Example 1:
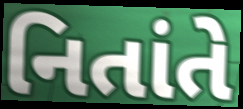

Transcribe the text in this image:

નિતાંતે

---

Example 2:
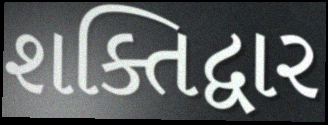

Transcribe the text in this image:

શક્તિદ્વાર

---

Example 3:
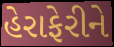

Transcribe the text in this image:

હેરાફેરીને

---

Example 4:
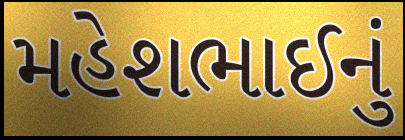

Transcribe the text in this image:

મહેશભાઈનું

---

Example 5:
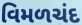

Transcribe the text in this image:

વિમળચંદ